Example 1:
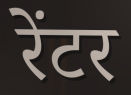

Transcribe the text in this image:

रेंटर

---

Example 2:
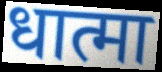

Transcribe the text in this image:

धात्मा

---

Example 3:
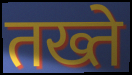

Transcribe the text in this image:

तख्ते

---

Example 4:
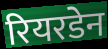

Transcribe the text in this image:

रियरडेन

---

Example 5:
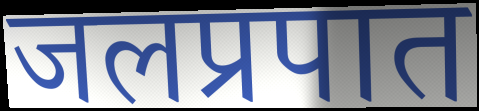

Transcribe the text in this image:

जलप्रपात